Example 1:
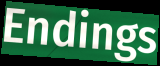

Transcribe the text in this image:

Endings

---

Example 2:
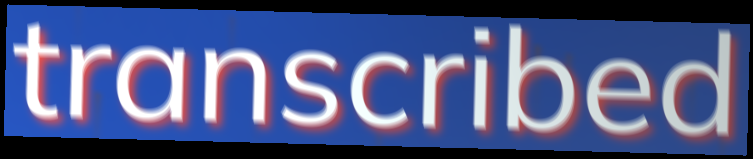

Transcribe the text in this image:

transcribed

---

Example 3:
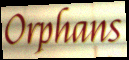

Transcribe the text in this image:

Orphans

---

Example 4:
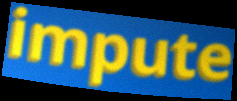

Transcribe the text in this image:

impute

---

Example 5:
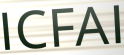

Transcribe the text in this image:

ICFAI